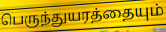
பெருந்துயரத்தையும்